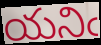
యనిఁ